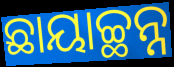
ଛାୟାଚ୍ଛନ୍ନ